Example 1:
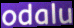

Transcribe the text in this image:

odalu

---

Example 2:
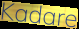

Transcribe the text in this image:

Kadare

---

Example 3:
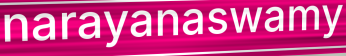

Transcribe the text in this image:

narayanaswamy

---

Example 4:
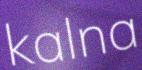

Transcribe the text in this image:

kalna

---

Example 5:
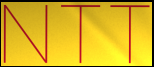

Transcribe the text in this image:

NTT